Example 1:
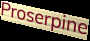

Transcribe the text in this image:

Proserpine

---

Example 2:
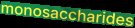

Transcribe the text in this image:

monosaccharides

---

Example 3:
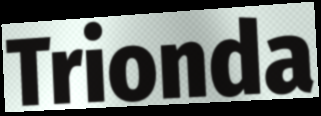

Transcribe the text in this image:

Trionda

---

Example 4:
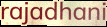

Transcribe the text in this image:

rajadhani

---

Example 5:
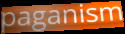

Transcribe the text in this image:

paganism